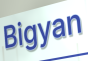
Bigyan